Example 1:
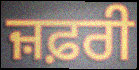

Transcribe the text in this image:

ਜ਼ਫ਼ਰੀ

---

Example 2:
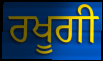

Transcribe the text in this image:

ਰਖੂਗੀ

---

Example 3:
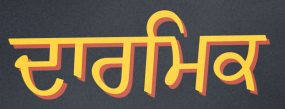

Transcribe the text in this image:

ਦਾਰਮਿਕ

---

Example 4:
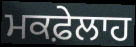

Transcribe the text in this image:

ਮਕਫ਼ੇਲਾਹ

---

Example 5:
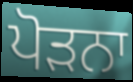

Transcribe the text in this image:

ਪੋੜਨਾ